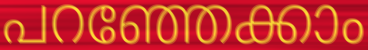
പറഞ്ഞേക്കാം